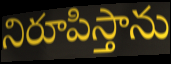
నిరూపిస్తాను